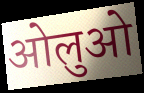
ओलुओ